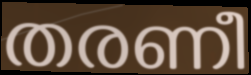
തരണീ